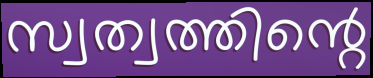
സ്വത്വത്തിന്റെ